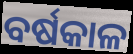
ବର୍ଷକାଳ